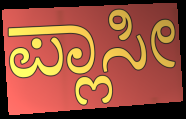
ಪ್ಲಾಸೀ